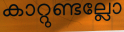
കാറ്റുണ്ടല്ലോ